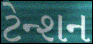
ટેન્શન